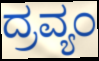
ದ್ರವ್ಯಂ